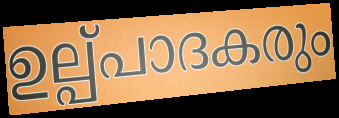
ഉല്പ്പാദകരും